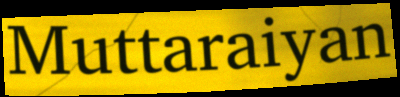
Muttaraiyan